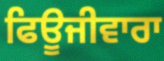
ਫਿਊਜੀਵਾਰਾ